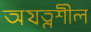
অযত্নশীল